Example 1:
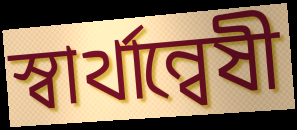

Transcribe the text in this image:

স্বার্থান্বেষী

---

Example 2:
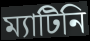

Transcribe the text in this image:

ম্যাটিনি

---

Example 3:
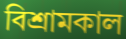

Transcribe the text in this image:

বিশ্রামকাল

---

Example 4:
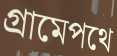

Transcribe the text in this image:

গ্রামেপথে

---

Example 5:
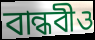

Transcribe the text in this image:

বান্ধবীও